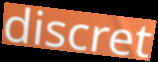
discret